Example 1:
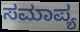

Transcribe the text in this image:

ಸಮಾಪ್ಯ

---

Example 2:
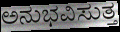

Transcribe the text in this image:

ಅನುಭವಿಸುತ್ತ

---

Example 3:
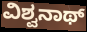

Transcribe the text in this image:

ವಿಶ್ವನಾಥ್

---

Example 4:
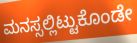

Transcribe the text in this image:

ಮನಸ್ಸಲ್ಲಿಟ್ಟುಕೊಂಡೇ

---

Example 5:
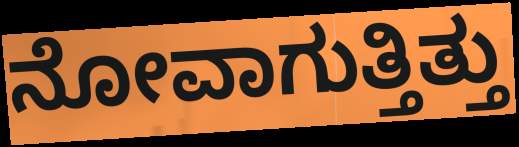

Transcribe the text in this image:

ನೋವಾಗುತ್ತಿತ್ತು